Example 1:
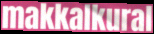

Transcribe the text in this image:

makkalkural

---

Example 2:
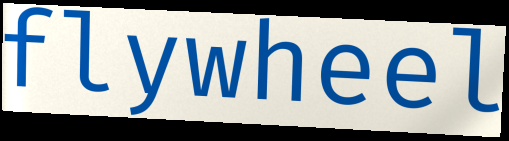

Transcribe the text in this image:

flywheel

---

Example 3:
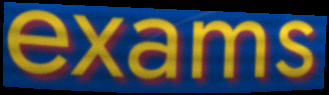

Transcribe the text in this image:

exams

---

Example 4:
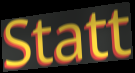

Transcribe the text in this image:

Statt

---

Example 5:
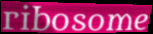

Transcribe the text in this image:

ribosome